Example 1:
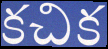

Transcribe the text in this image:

కచిక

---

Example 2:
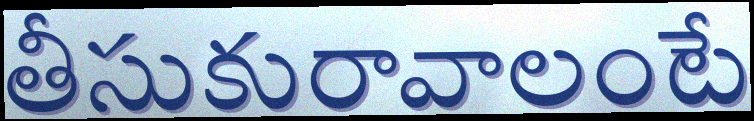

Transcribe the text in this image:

తీసుకురావాలంటే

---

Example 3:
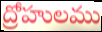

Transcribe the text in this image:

ద్రోహులము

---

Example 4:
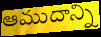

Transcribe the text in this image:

ఆముదాన్ని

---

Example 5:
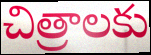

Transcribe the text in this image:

చిత్రాలకు